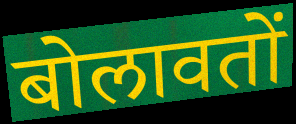
बोलावतों